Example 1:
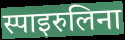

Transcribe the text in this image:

स्पाइरुलिना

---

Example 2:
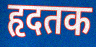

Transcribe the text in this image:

हृदतक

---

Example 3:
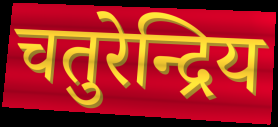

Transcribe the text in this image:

चतुरेन्द्रिय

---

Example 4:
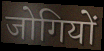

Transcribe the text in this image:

जोगियों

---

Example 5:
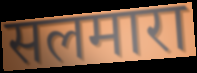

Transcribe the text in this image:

सलमारा